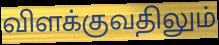
விளக்குவதிலும்